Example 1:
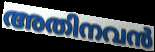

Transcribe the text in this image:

അതിനവൻ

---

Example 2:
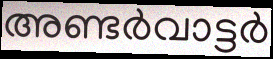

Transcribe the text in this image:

അണ്ടർവാട്ടർ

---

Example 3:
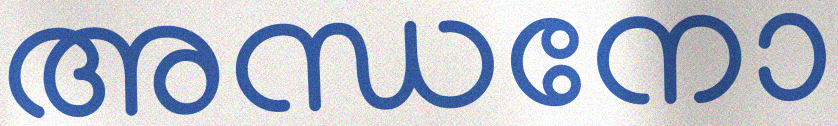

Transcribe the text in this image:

അന്ധനോ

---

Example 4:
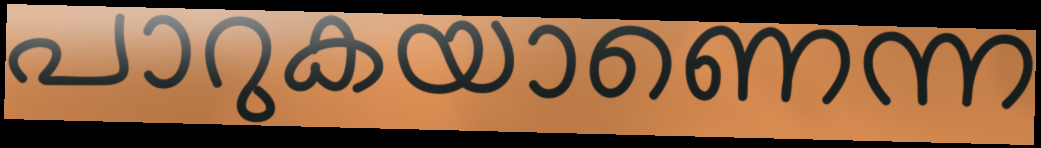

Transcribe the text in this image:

പാറുകയാണെന്ന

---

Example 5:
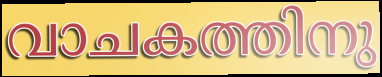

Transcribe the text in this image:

വാചകത്തിനു